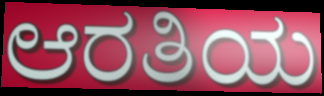
ಆರತಿಯ